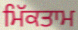
ਮਿੱਕਤਾਮ